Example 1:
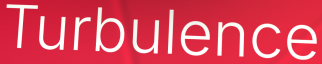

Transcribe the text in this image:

Turbulence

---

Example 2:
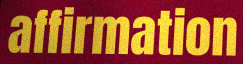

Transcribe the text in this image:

affirmation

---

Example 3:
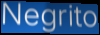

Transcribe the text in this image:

Negrito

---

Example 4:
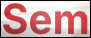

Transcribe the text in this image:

Sem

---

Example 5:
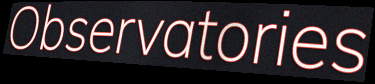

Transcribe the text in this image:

Observatories